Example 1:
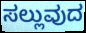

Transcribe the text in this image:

ಸಲ್ಲುವುದ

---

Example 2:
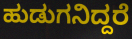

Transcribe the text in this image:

ಹುಡುಗನಿದ್ದರೆ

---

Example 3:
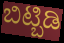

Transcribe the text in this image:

ಬಿಟ್ಬಿಡಿ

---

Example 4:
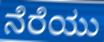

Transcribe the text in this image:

ನೆರೆಯು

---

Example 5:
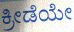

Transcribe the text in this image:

ಕ್ರೀಡೆಯೇ